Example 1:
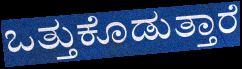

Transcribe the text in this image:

ಒತ್ತುಕೊಡುತ್ತಾರೆ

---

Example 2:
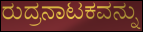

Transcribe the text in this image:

ರುದ್ರನಾಟಕವನ್ನು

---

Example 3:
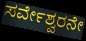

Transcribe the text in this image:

ಸರ್ವೇಶ್ವರನೇ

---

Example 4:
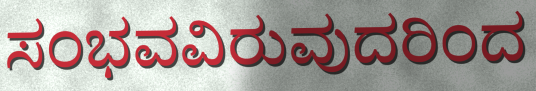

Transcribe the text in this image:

ಸಂಭವವಿರುವುದರಿಂದ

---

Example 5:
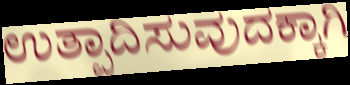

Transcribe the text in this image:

ಉತ್ಪಾದಿಸುವುದಕ್ಕಾಗಿ